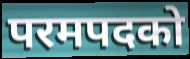
परमपदको